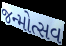
જન્મોત્સવ